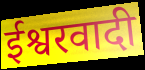
ईश्वरवादी